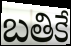
బతికే